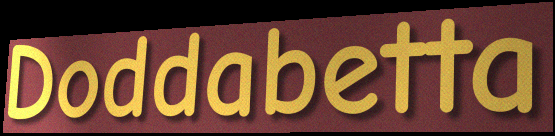
Doddabetta